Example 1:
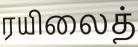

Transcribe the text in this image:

ரயிலைத்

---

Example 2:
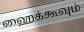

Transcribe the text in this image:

ஹைக்கூவும்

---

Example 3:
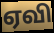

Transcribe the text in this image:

ஏவி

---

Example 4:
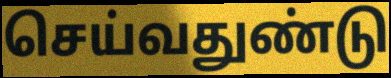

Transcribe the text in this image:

செய்வதுண்டு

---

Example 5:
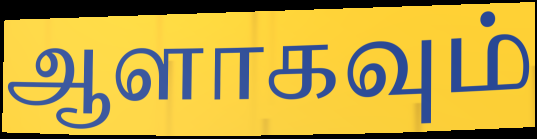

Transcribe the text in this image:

ஆளாகவும்